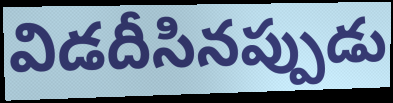
విడదీసినప్పుడు